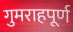
गुमराहपूर्ण